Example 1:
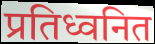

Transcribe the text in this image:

प्रतिध्वनित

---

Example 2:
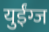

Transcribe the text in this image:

युईंग्ज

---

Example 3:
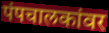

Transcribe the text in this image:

पंपचालकांवर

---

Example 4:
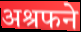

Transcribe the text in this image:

अश्रफने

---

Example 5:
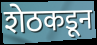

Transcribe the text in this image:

शेठकडून